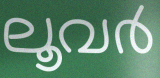
ലൂവർ